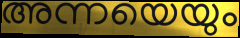
അന്നയെയും